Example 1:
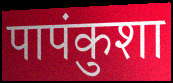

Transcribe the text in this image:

पापंकुशा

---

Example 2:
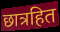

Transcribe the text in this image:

छात्रहित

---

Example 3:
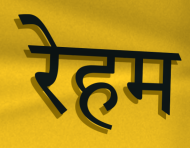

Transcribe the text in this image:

रेहम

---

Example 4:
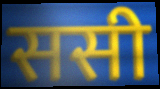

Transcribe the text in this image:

ससी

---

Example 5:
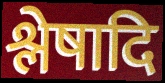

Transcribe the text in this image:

श्लेषादि